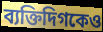
ব্যক্তিদিগকেও